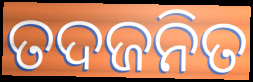
ତଦଜନିତ